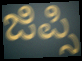
ಜಿಪ್ಸಿ